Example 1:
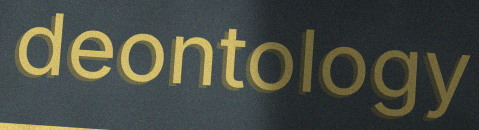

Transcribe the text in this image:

deontology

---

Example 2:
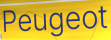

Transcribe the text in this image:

Peugeot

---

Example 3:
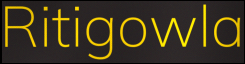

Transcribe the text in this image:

Ritigowla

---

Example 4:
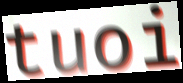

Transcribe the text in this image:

tuoi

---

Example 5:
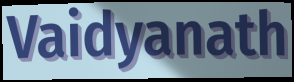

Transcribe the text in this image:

Vaidyanath